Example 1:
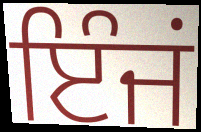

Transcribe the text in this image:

ਇੰਜਂ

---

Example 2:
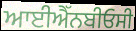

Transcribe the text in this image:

ਆਈਐੱਨਬੀਓਸੀ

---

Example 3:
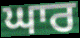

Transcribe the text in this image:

ਘਾਰ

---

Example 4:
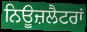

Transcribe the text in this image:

ਨਿਊਜ਼ਲੈਟਰਾਂ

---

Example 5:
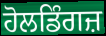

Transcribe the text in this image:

ਹੋਲਡਿੰਗਜ਼